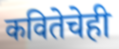
कवितेचेही